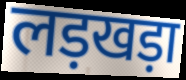
लड़खड़ा